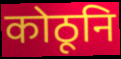
कोठूनि